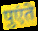
पुएंते